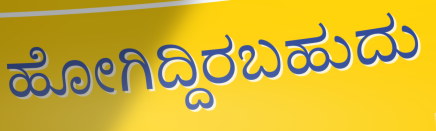
ಹೋಗಿದ್ದಿರಬಹುದು